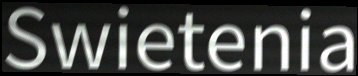
Swietenia